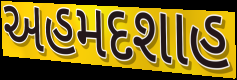
અહમદશાહ